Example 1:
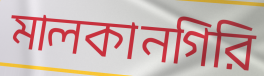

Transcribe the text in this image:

মালকানগিরি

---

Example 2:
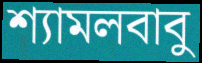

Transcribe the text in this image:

শ্যামলবাবু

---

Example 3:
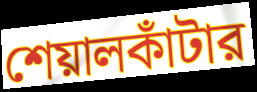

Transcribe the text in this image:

শেয়ালকাঁটার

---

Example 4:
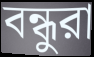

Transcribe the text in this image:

বন্ধুরা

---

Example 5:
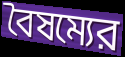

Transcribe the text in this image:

বৈষম্যের